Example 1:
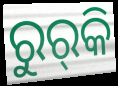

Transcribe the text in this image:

ରୁର୍‍କି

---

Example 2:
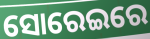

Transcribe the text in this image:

ସୋରେଇରେ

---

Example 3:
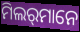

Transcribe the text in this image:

ମିଲର୍‌ମାନେ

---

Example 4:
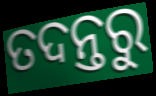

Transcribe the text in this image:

ତଦନ୍ତରୁ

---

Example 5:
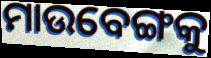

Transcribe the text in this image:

ମାଉବେଙ୍ଗକୁ